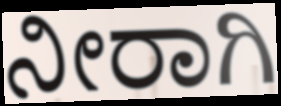
ನೀರಾಗಿ